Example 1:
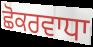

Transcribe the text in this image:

ਛੋਕਰਵਾਧਾ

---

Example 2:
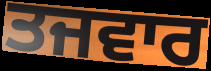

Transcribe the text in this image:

ਤਜਵਾਰ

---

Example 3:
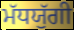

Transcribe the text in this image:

ਮੱਧਯੁੱਗੀ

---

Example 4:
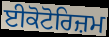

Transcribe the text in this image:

ਈਕੋਟੋਰਿਜ਼ਮ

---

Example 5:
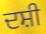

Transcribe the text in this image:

ਦਸ਼ੀ